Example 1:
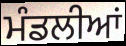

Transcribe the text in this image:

ਮੰਡਲੀਆਂ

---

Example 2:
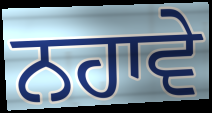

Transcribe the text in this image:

ਨਹਾਵੇ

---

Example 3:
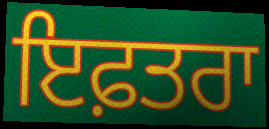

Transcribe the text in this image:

ਇਫ਼ਤਰਾ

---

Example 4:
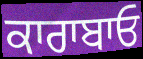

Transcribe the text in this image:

ਕਾਰਾਬਾਓ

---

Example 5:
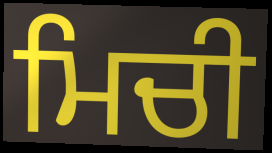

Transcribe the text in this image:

ਮਿਚੀ